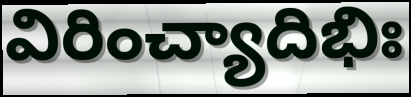
విరించ్యాదిభిః